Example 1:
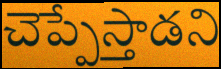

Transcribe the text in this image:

చెప్పేస్తాడని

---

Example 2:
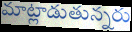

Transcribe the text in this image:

మాట్లాడుతున్నరు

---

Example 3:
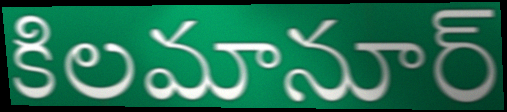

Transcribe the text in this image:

కిలమానూర్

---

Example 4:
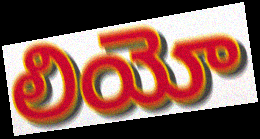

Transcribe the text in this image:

లియో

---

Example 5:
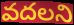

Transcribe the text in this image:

వదలని